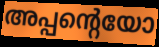
അപ്പന്റെയോ